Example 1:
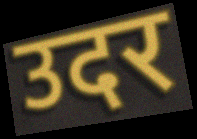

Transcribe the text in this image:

उदर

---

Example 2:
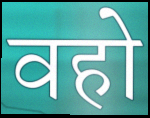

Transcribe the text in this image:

वहो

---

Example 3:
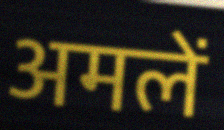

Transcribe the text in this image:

अमलें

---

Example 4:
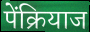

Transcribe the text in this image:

पेंक्रियाज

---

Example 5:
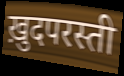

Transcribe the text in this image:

ख़ुदपरस्ती